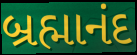
બ્રહ્માનંદ